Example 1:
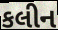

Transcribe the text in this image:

કલીન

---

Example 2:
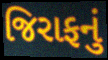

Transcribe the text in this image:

જિરાફનું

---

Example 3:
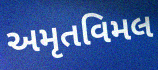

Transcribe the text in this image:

અમૃતવિમલ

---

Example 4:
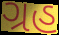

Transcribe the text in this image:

ગ્રહ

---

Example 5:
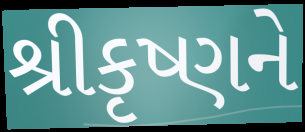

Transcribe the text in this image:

શ્રીકૃષ્ણને